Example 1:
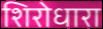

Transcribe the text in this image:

शिरोधारा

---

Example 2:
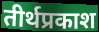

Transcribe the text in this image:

तीर्थप्रकाश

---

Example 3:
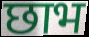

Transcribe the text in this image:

छाभ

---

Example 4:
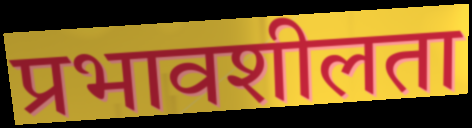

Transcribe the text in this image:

प्रभावशीलता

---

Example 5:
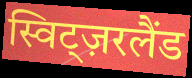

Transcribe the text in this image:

स्विट्ज़रलैंड